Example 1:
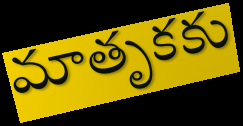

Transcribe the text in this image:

మాతృకకు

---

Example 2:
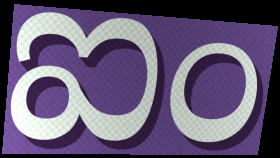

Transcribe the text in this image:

ఐం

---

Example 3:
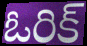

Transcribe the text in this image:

ఓరిక్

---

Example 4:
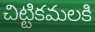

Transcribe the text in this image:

చిట్టికమలకి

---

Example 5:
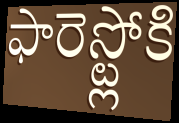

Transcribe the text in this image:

ఫారెస్ట్లోకి